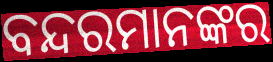
ବନ୍ଦରମାନଙ୍କର